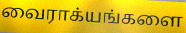
வைராக்யங்களை